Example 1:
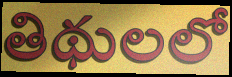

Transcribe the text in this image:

తిథులలో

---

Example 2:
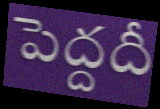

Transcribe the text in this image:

పెద్దదీ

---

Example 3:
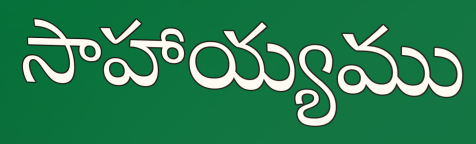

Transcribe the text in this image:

సాహాయ్యము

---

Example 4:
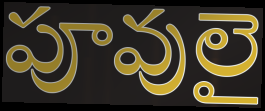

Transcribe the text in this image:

పూవులై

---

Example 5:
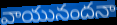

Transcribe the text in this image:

వాయునందనా